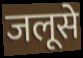
जलूसे